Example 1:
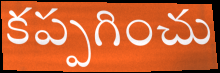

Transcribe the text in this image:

కప్పగించు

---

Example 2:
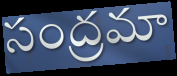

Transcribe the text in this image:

సంద్రమా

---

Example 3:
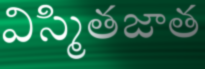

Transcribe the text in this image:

విస్మితజాత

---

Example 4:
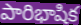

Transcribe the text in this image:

పారిభాషిక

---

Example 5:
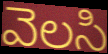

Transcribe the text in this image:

వెలసి